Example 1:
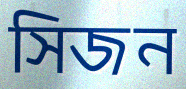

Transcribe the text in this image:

সিজন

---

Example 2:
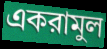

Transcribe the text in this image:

একরামুল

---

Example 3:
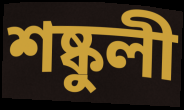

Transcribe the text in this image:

শষ্কুলী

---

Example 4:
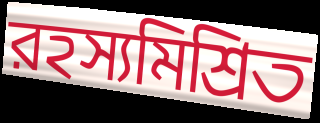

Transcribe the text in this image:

রহস্যমিশ্রিত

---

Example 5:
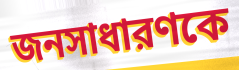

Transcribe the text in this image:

জনসাধারণকে